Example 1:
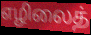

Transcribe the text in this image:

எழிலைத்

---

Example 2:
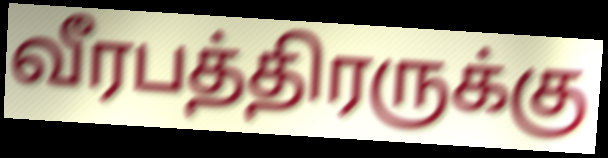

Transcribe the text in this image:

வீரபத்திரருக்கு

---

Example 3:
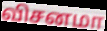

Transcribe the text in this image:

விசனமா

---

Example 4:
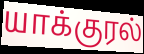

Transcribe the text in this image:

யாக்குரல்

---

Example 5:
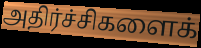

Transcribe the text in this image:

அதிர்ச்சிகளைக்